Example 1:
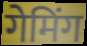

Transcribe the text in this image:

गेमिंग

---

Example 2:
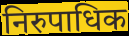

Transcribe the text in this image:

निरुपाधिक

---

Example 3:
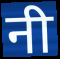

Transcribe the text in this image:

नी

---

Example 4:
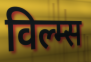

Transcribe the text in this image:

विल्म्स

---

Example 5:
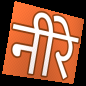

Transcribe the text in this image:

नीरे